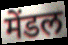
मेंडल